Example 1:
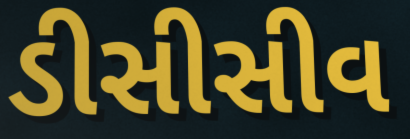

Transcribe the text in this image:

ડીસીસીવ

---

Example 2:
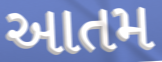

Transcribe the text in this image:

આતમ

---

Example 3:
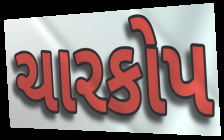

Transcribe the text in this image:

ચારકોપ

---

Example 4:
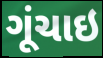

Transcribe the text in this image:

ગૂંચાઇ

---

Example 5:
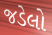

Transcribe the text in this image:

જડેલો